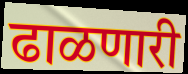
ढाळणारी